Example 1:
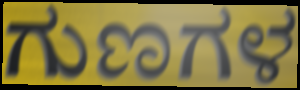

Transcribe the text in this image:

ಗುಣಗಳ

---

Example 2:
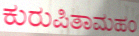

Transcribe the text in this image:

ಕುರುಪಿತಾಮಹಂ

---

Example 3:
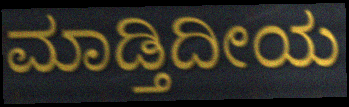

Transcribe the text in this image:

ಮಾಡ್ತಿದೀಯ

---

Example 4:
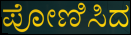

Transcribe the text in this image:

ಪೋಣಿಸಿದ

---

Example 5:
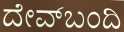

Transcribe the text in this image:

ದೇವ್‌ಬಂದಿ